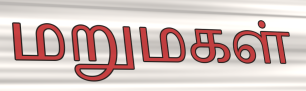
மறுமகள்